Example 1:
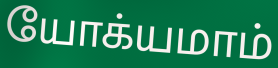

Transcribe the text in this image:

யோக்யமாம்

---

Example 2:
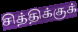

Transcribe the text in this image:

சித்திக்குக்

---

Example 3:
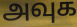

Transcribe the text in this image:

அவுக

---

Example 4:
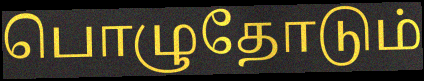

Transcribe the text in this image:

பொழுதோடும்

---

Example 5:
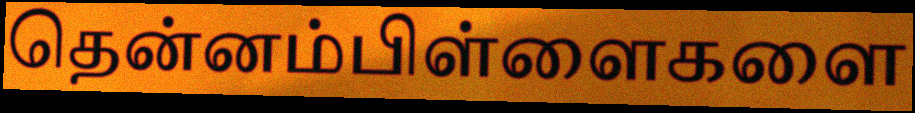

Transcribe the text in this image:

தென்னம்பிள்ளைகளை